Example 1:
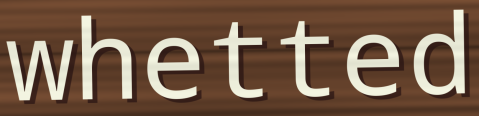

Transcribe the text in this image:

whetted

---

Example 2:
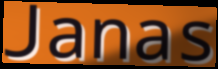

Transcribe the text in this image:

Janas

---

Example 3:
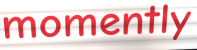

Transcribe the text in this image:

momently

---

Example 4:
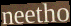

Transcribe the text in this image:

neetho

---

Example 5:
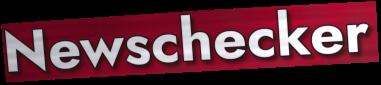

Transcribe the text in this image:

Newschecker